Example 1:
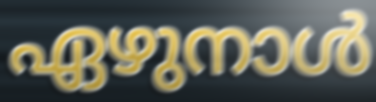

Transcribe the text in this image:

ഏഴുനാൾ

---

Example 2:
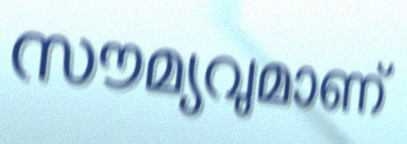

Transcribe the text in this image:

സൗമ്യവുമാണ്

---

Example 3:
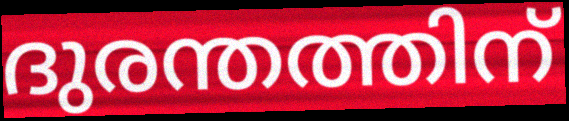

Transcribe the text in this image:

ദുരന്തത്തിന്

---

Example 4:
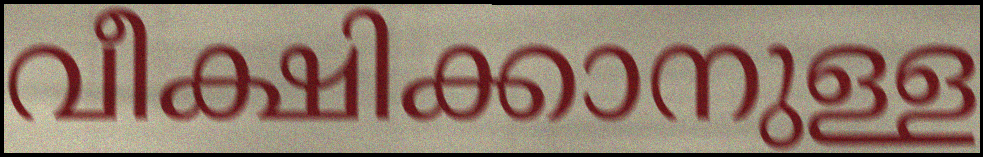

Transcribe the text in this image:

വീക്ഷിക്കാനുള്ള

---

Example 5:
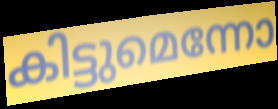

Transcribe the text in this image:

കിട്ടുമെന്നോ